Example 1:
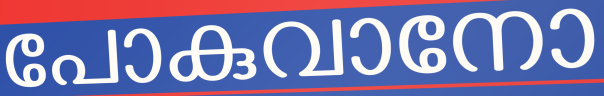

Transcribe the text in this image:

പോകുവാനോ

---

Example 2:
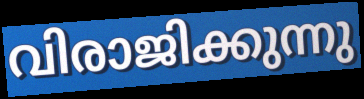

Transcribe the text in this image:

വിരാജിക്കുന്നു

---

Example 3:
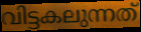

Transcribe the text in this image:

വിട്ടകലുന്നത്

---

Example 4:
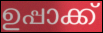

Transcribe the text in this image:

ഉപ്പാക്ക്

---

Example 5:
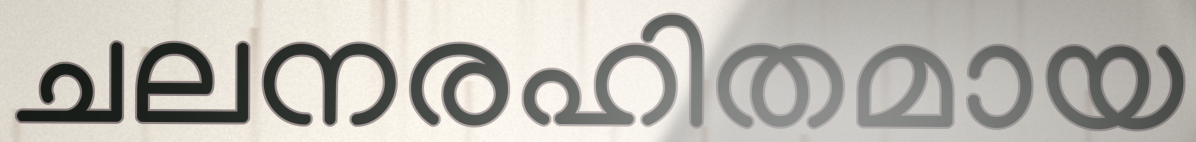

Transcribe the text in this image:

ചലനരഹിതമായ